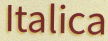
Italica